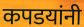
कपडयांनी